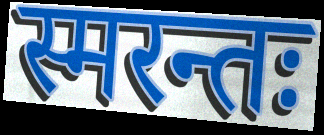
स्मरन्तः